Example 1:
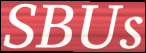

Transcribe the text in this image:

SBUs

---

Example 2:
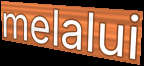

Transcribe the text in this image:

melalui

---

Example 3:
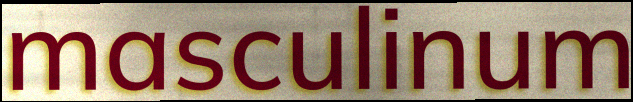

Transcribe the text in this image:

masculinum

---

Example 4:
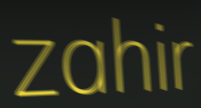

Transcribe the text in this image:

zahir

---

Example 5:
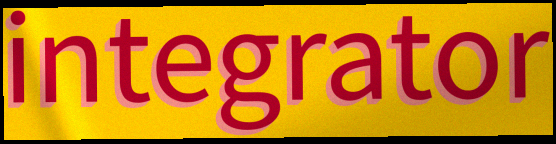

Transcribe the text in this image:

integrator